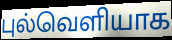
புல்வெளியாக